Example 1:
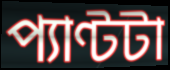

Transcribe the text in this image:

প্যাণ্টটা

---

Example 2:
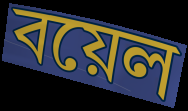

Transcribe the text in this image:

বয়েল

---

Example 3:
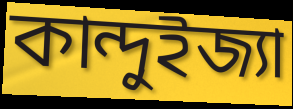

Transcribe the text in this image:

কান্দুইজ্যা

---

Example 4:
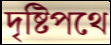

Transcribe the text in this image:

দৃষ্টিপথে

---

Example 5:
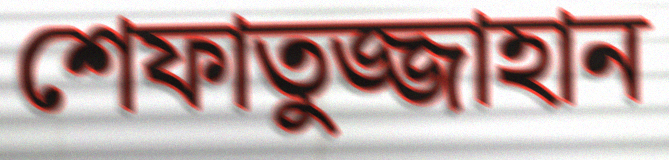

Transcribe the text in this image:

শেফাতুজ্জাহান